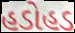
હડોહડ